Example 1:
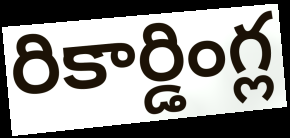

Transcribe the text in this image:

రికార్డింగ్ల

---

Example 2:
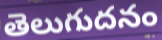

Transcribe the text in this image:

తెలుగుదనం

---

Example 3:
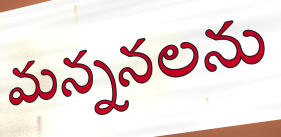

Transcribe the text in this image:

మన్ననలను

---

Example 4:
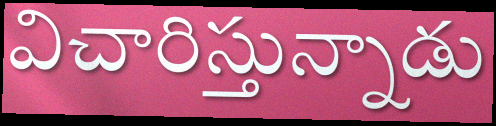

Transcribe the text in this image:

విచారిస్తున్నాడు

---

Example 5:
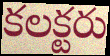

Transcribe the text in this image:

కలక్టరు